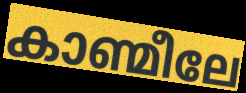
കാണ്മീലേ